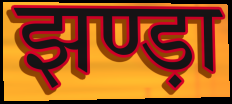
झण्ड़ा